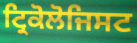
ਟ੍ਰਿਕੋਲੋਜਿਸਟ